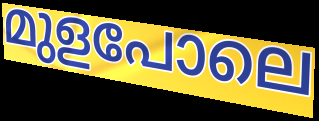
മുളപോലെ